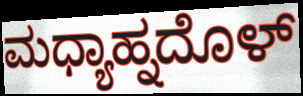
ಮಧ್ಯಾಹ್ನದೊಳ್